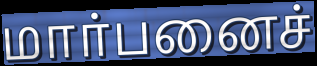
மார்பனைச்